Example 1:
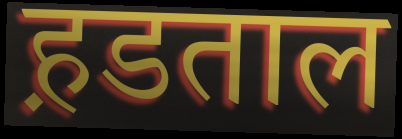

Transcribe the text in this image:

ह़डताल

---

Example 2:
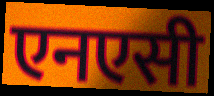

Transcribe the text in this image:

एनएसी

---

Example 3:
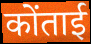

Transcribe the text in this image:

कोंताई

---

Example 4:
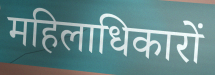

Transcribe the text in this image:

महिलाधिकारों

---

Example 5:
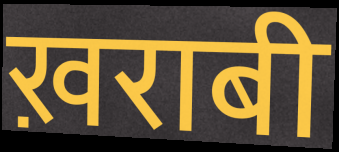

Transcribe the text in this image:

ख़राबी